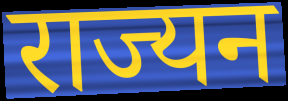
राज्यन